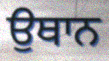
ਉਥਾਨ